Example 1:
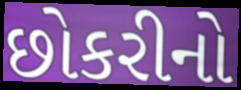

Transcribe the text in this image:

છોકરીનો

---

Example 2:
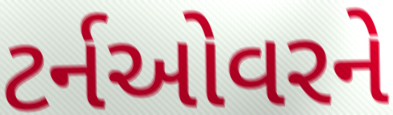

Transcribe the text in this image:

ટર્નઓવરને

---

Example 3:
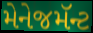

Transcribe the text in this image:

મેનેજમૅન્ટ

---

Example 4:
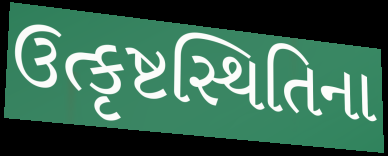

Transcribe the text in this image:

ઉત્કૃષ્ટસ્થિતિના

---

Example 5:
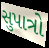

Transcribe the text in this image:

સુપાત્રો